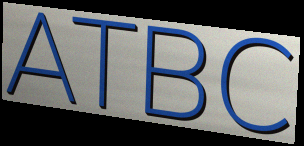
ATBC